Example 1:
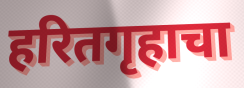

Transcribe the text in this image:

हरितगृहाचा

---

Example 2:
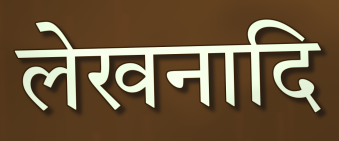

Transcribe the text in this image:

लेखनादि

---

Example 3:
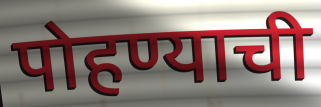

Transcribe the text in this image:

पोहण्याची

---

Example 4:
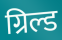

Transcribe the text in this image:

ग्रिल्ड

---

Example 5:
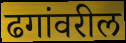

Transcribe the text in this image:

ढगांवरील